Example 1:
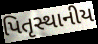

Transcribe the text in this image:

પિતૃસ્થાનીય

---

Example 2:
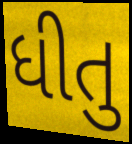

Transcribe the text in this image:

ધીતુ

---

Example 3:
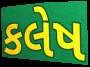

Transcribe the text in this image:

કલેષ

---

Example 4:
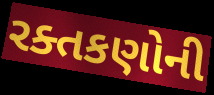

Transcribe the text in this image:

રક્તકણોની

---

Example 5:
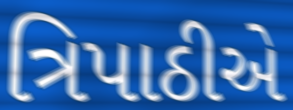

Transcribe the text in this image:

ત્રિપાઠીએ